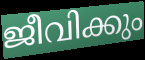
ജീവിക്കും